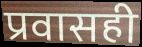
प्रवासही